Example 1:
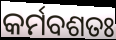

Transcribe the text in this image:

କର୍ମବଶତଃ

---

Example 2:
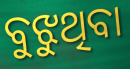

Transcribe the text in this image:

ବୁଝୁଥିବା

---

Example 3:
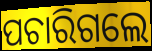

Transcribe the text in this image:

ପଚାରିଗଲେ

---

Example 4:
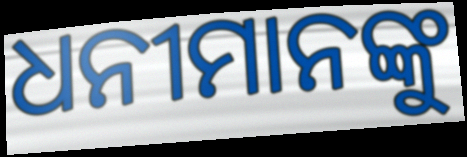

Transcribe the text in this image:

ଧନୀମାନଙ୍କୁ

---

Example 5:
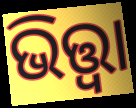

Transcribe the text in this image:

ଭିତ୍ତ୍ୱା